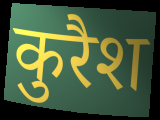
कुरैश